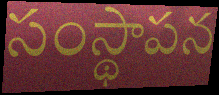
సంస్థాపన